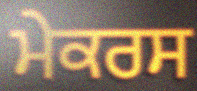
ਮੇਕਰਸ